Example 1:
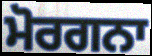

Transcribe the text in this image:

ਮੋਰਗਨਾ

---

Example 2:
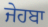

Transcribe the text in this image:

ਜੇਹਬਾ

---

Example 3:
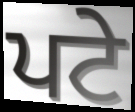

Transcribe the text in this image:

ਪਟੇ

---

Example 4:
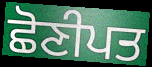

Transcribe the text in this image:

ਛੋਣੀਪਤ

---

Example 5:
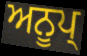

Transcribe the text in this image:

ਅਨੂਪ੍